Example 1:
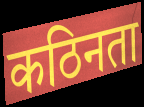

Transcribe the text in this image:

कठिनता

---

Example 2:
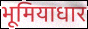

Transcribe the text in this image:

भूमियाधार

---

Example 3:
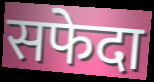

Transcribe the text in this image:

सफेदा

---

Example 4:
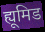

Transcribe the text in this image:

ह्यूमिड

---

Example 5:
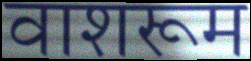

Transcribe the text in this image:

वाशरूम